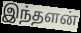
இந்தளன்